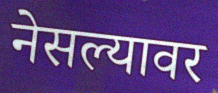
नेसल्यावर